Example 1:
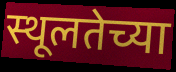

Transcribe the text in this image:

स्थूलतेच्या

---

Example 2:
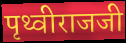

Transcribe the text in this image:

पृथ्वीराजजी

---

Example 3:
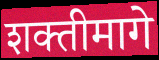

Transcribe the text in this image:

शक्तीमागे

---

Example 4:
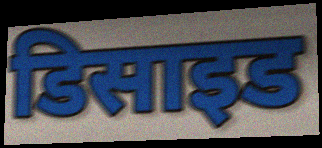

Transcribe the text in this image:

डिसाइड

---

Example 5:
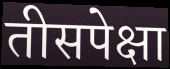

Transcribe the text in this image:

तीसपेक्षा